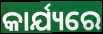
କାର୍ଯ୍ୟରେ